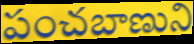
పంచబాణుని